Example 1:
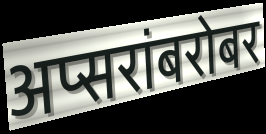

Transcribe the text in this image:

अप्सरांबरोबर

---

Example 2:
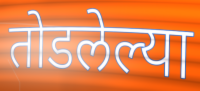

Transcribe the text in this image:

तोडलेल्या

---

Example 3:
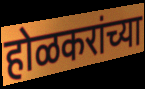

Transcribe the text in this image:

होळकरांच्या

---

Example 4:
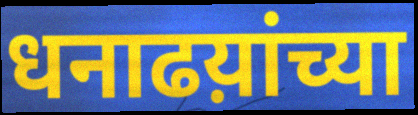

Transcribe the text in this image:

धनाढय़ांच्या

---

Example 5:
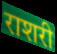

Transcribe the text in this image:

राशरी